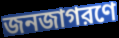
জনজাগরণে